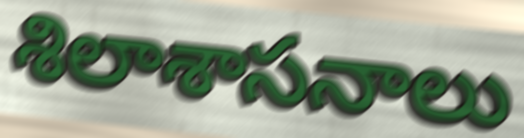
శిలాశాసనాలు